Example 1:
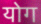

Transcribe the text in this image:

योग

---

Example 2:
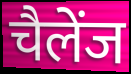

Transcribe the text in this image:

चैलेंज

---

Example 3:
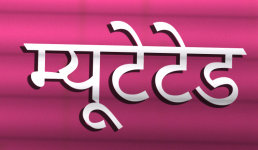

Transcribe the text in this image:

म्यूटेटेड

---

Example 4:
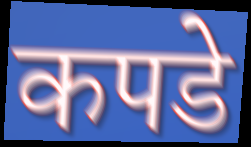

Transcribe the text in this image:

कपडे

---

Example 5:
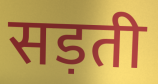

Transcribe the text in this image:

सड़ती